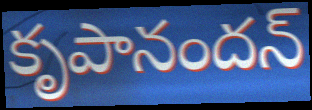
కృపానందన్